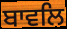
ਬਾਵਲਿ